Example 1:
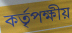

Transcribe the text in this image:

কর্তৃপক্ষীয়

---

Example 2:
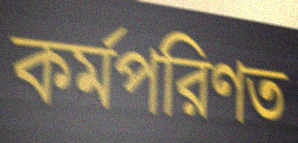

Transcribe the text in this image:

কর্মপরিণত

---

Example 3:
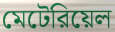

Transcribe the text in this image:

মেটেরিয়েল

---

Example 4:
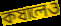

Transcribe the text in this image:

কষালেও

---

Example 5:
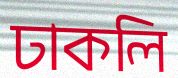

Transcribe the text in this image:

ঢাকলি